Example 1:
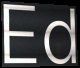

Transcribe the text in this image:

Ed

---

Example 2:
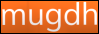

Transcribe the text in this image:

mugdh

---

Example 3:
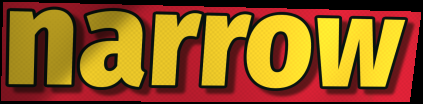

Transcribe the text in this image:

narrow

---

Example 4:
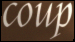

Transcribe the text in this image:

coup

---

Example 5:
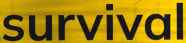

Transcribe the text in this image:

survival